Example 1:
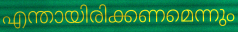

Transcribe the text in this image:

എന്തായിരിക്കണമെന്നും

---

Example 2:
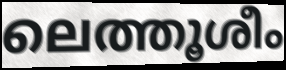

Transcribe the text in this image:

ലെത്തൂശീം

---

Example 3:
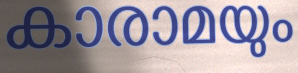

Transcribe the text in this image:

കാരാമയും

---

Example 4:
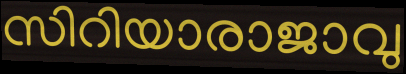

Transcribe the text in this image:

സിറിയാരാജാവു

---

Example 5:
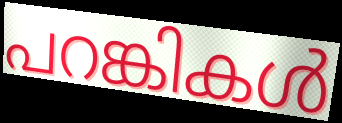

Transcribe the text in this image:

പറങ്കികൾ